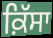
ਕ਼ਿੱਸਾ